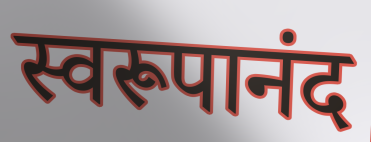
स्वरूपानंद